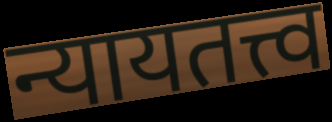
न्यायतत्त्व